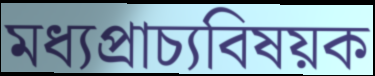
মধ্যপ্রাচ্যবিষয়ক